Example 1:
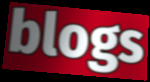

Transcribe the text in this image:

blogs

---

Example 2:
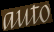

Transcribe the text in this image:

auto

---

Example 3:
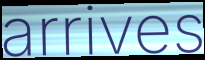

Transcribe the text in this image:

arrives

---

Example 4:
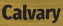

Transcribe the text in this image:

Calvary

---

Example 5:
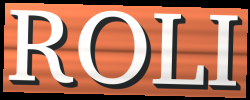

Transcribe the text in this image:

ROLI